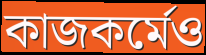
কাজকর্মেও